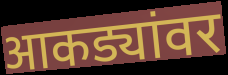
आकड्यांवर